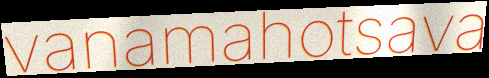
vanamahotsava